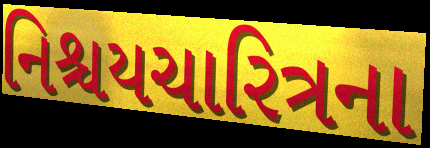
નિશ્ચયચારિત્રના